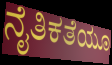
ನೈತಿಕತೆಯೂ